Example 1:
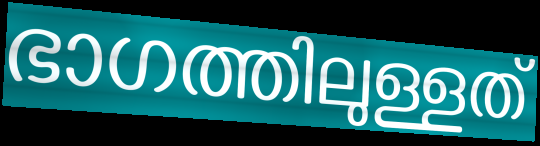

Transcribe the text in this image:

ഭാഗത്തിലുള്ളത്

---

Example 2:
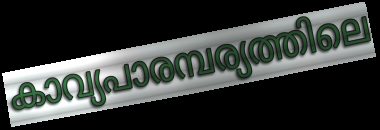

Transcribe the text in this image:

കാവ്യപാരമ്പര്യത്തിലെ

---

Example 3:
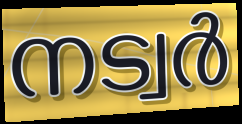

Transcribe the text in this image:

നട്വർ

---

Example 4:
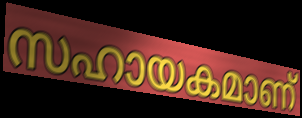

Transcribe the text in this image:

സഹായകമാണ്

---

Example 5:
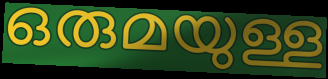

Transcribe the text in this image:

ഒരുമയുള്ള